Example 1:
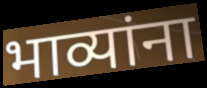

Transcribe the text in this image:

भाव्यांना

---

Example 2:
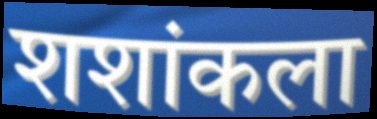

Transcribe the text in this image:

शशांकला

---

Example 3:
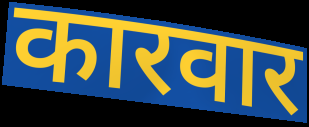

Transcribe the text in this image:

कारवार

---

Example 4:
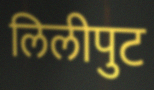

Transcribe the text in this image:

लिलीपुट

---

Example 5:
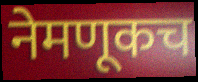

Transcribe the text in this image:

नेमणूकच